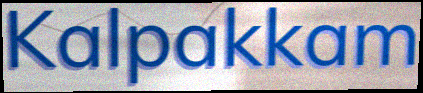
Kalpakkam